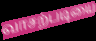
வாசற்படியை